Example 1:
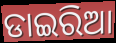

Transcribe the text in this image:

ଡାଇରିଆ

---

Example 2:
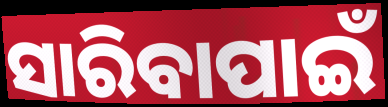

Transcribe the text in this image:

ସାରିବାପାଇଁ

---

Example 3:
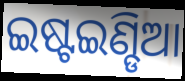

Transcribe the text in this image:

ଇଷ୍ଟଇଣ୍ଡିଆ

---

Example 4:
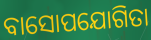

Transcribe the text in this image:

ବାସୋପଯୋଗିତା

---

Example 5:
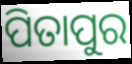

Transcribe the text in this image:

ପିତାପୁର